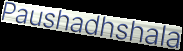
Paushadhshala